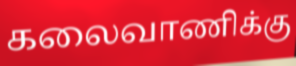
கலைவாணிக்கு